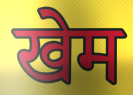
खेम